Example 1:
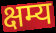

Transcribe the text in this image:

क्षम्य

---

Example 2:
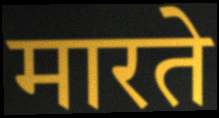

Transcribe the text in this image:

मारते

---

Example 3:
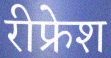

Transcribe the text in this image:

रीफ्रेश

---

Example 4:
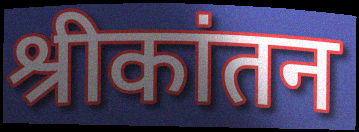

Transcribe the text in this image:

श्रीकांतन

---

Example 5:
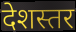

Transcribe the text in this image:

देशस्तर